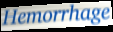
Hemorrhage